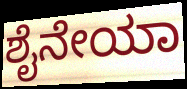
ಶೈನೇಯಾ